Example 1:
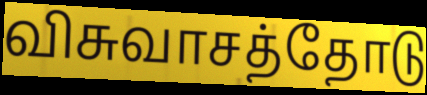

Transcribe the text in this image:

விசுவாசத்தோடு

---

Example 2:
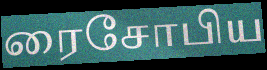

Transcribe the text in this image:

ரைசோபிய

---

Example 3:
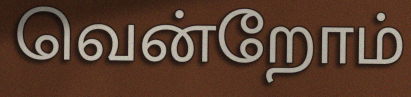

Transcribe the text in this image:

வென்றோம்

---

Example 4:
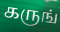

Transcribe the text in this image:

கருங்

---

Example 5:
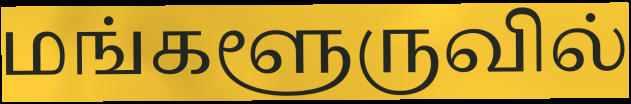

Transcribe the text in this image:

மங்களூருவில்